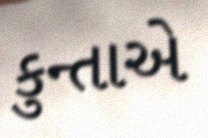
કુન્તાએ